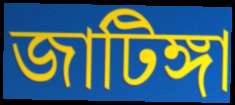
জাটিঙ্গা